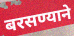
बरसण्याने